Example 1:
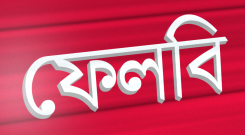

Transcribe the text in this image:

ফেলবি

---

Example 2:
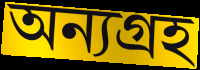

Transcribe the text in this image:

অন্যগ্রহ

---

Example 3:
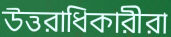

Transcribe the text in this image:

উত্তরাধিকারীরা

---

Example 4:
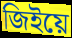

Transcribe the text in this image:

জিইয়ে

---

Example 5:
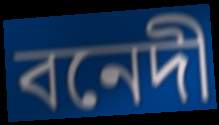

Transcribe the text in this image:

বনেদী